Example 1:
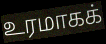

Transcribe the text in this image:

உரமாகக்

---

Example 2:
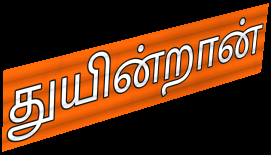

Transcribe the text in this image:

துயின்றான்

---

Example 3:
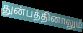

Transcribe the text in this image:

துன்பத்தினாலும்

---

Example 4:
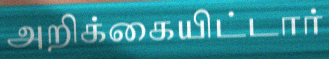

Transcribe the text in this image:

அறிக்கையிட்டார்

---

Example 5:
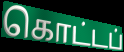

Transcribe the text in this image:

கொட்டப்